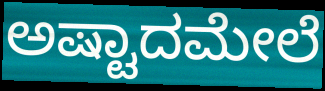
ಅಷ್ಟಾದಮೇಲೆ